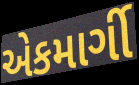
એકમાર્ગી